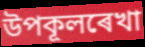
উপকূলৰেখা